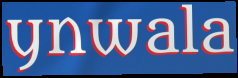
ynwala